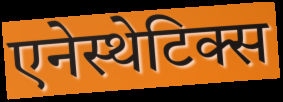
एनेस्थेटिक्स